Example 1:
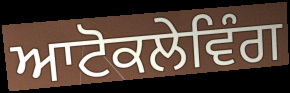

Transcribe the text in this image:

ਆਟੋਕਲੇਵਿੰਗ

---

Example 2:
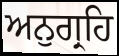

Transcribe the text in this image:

ਅਨੁਗ੍ਰਹਿ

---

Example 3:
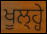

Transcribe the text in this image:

ਖੂਲ੍ਹ੍ਹੇ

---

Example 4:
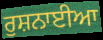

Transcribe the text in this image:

ਰੁਸ਼ਨਾਈਆ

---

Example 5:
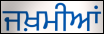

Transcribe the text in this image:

ਜਖ਼ਮੀਆਂ